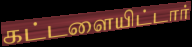
கட்டளையிட்டார்